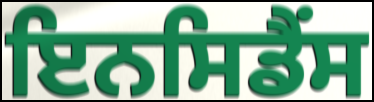
ਇਨਸਿਡੈਂਸ